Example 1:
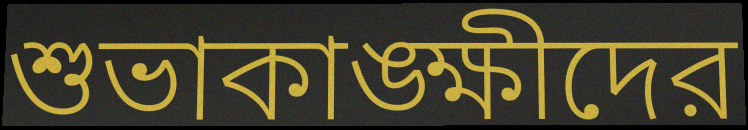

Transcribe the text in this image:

শুভাকাঙ্ক্ষীদের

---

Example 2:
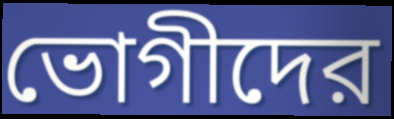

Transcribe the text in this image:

ভোগীদের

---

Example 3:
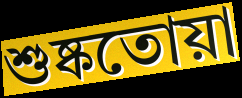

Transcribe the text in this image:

শুষ্কতোয়া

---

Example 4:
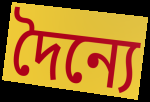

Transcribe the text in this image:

দৈন্যে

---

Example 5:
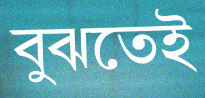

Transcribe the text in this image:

বুঝতেই